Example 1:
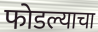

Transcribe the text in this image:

फोडल्याचा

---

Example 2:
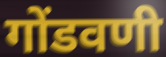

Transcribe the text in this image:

गोंडवणी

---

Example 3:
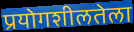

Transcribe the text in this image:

प्रयोगशीलतेला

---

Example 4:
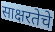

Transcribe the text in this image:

साक्षरतेचे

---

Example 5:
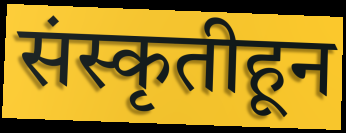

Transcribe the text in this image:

संस्कृतीहून